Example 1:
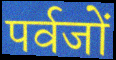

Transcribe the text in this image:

पर्वजों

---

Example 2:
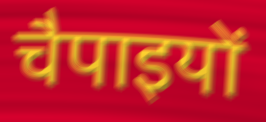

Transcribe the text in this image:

चैपाइयों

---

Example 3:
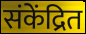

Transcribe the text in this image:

संकेंद्रित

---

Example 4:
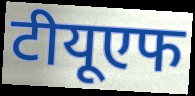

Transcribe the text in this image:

टीयूएफ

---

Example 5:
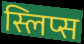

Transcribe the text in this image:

स्लिप्स